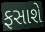
ફસાશે